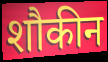
शौकीन